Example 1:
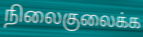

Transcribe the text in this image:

நிலைகுலைக்க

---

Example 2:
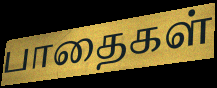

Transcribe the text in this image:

பாதைகள்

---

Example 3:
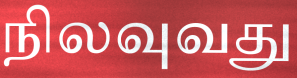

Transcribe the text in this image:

நிலவுவது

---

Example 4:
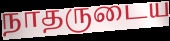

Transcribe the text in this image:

நாதருடைய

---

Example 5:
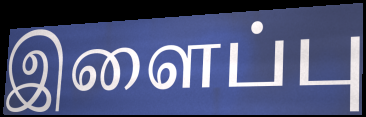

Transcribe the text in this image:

இளைப்பு